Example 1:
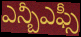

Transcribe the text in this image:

ఎన్బీఎఫ్సీ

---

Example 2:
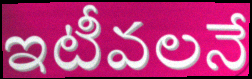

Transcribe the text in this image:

ఇటీవలనే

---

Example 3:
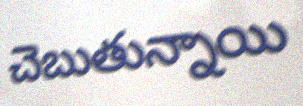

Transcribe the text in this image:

చెబుతున్నాయి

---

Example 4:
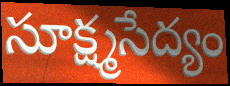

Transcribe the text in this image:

సూక్ష్మసేద్యం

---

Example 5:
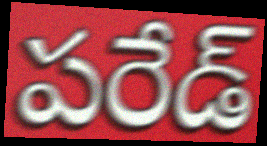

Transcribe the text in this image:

పరేడ్